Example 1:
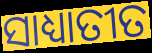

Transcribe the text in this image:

ସାଧ୍ୟାତୀତ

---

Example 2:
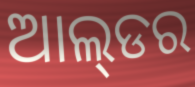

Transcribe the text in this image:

ଆଲ୍‌ଡର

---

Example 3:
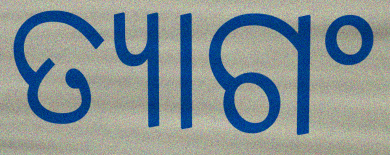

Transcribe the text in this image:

ତ୍ୟାଗଂ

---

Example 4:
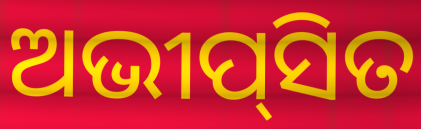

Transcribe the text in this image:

ଅଭୀପ୍‌ସିତ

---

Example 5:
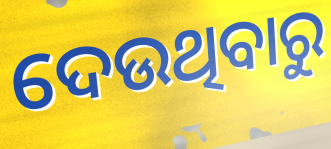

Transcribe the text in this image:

ଦେଉଥିବାରୁ